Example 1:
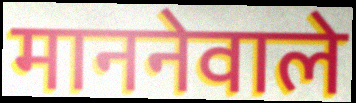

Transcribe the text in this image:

माननेवाले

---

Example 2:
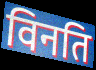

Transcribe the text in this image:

विनति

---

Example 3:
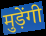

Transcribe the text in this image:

मुड़ेंगी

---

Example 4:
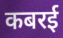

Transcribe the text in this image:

कबरई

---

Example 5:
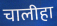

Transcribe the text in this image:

चालीहा